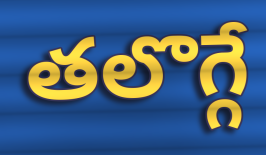
తలొగ్గే